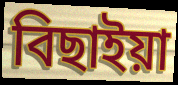
বিছাইয়া